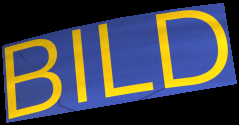
BILD